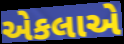
એકલાએ